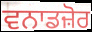
ਵਨਾਡਜ਼ੋਰ